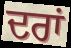
ਦਰਾਂ